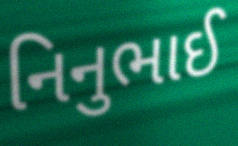
નિનુભાઈ